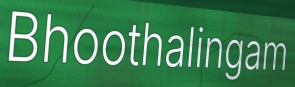
Bhoothalingam